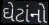
ઘેટાંનો